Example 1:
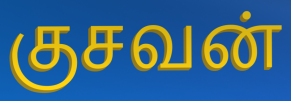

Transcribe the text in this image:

குசவன்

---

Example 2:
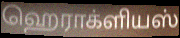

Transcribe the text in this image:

ஹெராக்ளியஸ்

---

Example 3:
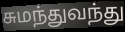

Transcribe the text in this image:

சுமந்துவந்து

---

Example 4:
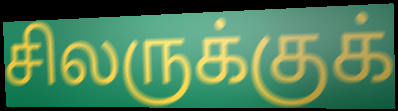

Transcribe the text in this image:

சிலருக்குக்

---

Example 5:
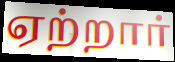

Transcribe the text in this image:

ஏற்றார்